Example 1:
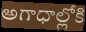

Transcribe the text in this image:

అగాధాల్లోకి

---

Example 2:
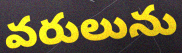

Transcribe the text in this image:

వరులును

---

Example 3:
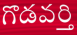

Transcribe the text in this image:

గొడవర్తి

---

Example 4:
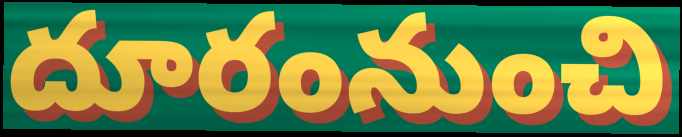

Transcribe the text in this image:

దూరంనుంచి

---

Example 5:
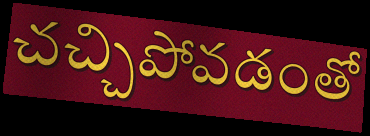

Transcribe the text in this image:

చచ్చిపోవడంతో